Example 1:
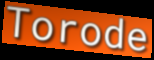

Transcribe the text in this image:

Torode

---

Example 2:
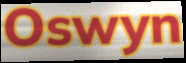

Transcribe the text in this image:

Oswyn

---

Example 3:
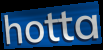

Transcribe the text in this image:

hotta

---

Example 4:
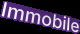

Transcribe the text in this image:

Immobile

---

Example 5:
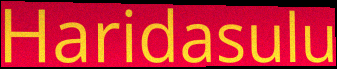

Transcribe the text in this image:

Haridasulu